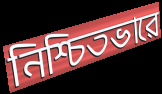
নিশ্চিতভাৱে